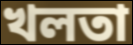
খলতা